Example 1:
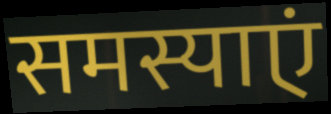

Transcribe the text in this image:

समस्याएं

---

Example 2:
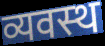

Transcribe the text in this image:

व्यवस्थ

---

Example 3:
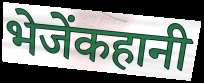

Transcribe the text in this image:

भेजेंकहानी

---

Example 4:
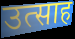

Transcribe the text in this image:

उत्साह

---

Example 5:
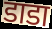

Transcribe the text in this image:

डाडा